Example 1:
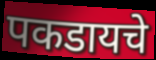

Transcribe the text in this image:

पकडायचे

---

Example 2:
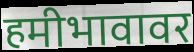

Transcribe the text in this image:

हमीभावावर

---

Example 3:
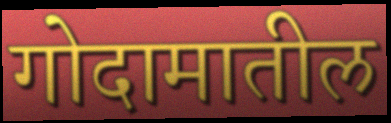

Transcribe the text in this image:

गोदामातील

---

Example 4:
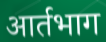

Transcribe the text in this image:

आर्तभाग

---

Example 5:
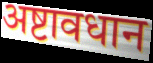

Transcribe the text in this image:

अष्टावधान